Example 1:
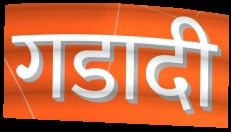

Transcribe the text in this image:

गडादी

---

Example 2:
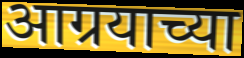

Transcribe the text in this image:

आग्रयाच्या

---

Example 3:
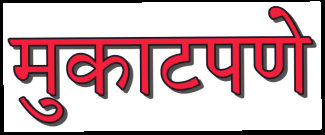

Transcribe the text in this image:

मुकाटपणे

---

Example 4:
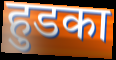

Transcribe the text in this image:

हुडका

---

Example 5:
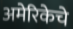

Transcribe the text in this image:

अमेरिकेचे